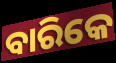
ବାରିକେ